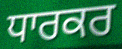
ਧਾਰਕਰ